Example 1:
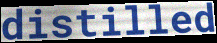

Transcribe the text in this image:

distilled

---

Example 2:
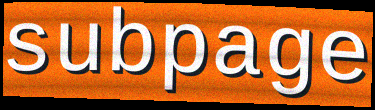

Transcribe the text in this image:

subpage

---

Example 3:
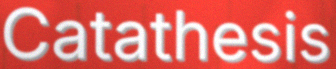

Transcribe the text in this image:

Catathesis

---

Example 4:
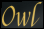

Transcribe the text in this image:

Owl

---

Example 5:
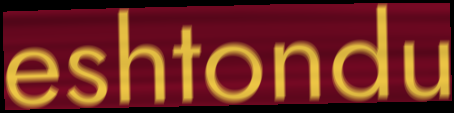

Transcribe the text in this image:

eshtondu